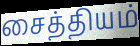
சைத்தியம்